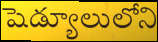
షెడ్యూలులోని